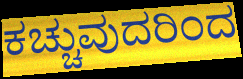
ಕಚ್ಚುವುದರಿಂದ